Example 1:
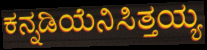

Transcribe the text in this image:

ಕನ್ನಡಿಯೆನಿಸಿತ್ತಯ್ಯ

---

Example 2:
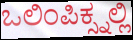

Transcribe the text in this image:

ಒಲಿಂಪಿಕ್ಸ್ನಲ್ಲಿ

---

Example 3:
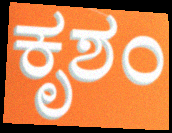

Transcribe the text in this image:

ಕೃಶಂ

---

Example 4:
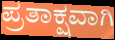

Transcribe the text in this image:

ಪ್ರತಾಕ್ಷವಾಗಿ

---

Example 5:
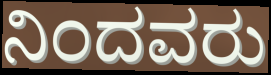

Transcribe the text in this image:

ನಿಂದವರು